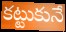
కట్టుకునే